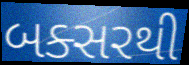
બક્સરથી